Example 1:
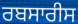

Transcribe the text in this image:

ਰਬਸਾਰੀਸ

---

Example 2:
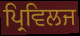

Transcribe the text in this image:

ਪ੍ਰਿਵਿਲਜ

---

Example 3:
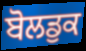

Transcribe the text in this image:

ਬੋਲਡੁਕ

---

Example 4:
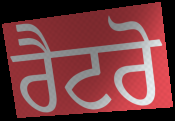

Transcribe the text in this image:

ਰੈਟਰੋ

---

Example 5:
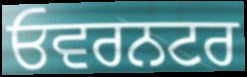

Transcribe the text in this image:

ਓਵਰਨਟਰ